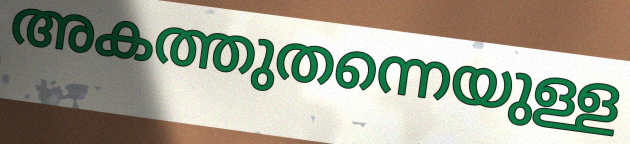
അകത്തുതന്നെയുള്ള